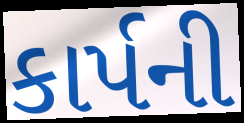
કાર્પની